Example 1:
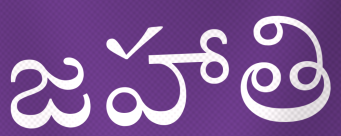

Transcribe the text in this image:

జహాతి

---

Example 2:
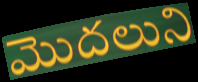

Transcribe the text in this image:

మొదలుని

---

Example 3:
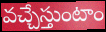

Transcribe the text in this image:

వచ్చేస్తుంటాం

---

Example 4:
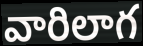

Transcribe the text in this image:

వారిలాగ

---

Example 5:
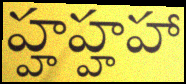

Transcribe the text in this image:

హ్హహ్హహా